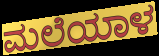
ಮಲೆಯಾಳ